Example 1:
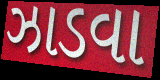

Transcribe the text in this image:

ઝાડવા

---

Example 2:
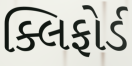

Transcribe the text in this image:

ક્લિફોર્ડ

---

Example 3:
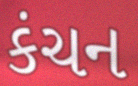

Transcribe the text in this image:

કંચન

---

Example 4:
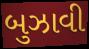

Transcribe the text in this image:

બુઝાવી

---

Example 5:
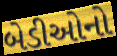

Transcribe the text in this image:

બેડીઓનો